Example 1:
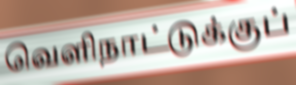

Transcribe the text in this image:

வெளிநாட்டுக்குப்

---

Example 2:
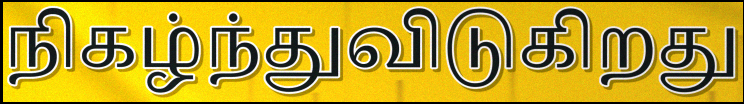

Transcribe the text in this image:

நிகழ்ந்துவிடுகிறது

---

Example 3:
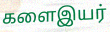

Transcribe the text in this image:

களைஇயர்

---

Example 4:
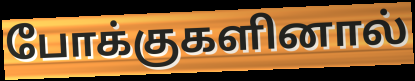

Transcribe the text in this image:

போக்குகளினால்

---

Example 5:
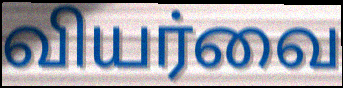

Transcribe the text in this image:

வியர்வை